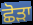
ਛੋੜਾ